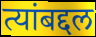
त्यांबद्दल